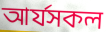
আৰ্যসকল